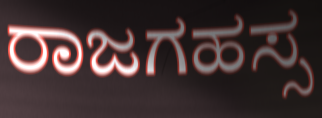
ರಾಜಗಹಸ್ಸ